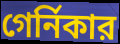
গের্নিকার